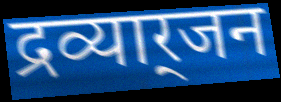
द्रव्यार्जन